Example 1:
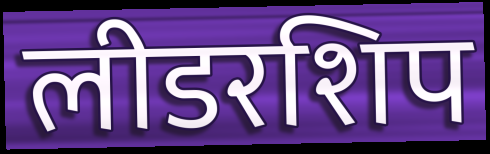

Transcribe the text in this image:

लीडरशिप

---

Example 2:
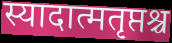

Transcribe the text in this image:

स्यादात्मतृप्तश्च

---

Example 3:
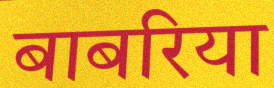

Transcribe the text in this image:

बाबरिया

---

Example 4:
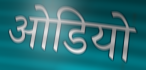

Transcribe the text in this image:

ओडियो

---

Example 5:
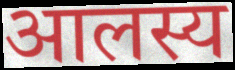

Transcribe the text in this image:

आलस्य